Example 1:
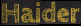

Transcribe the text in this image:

Haider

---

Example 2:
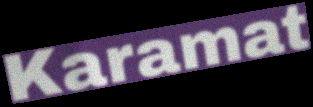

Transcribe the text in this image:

Karamat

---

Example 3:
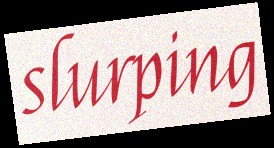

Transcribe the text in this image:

slurping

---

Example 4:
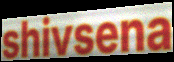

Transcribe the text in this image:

shivsena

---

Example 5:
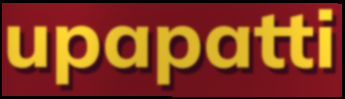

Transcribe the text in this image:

upapatti